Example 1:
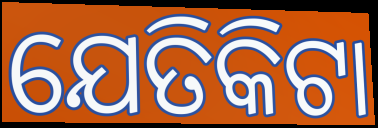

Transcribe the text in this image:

ଯେତିକିଟା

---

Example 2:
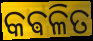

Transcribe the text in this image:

କଵଳିତ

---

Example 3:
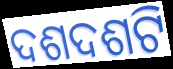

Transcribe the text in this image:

ଦଶଦଶଟି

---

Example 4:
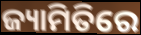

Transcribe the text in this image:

ଜ୍ୟାମିତିରେ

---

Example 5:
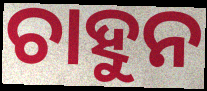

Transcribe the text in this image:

ଚାହୁନ